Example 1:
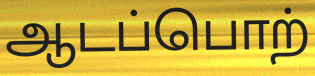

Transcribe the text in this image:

ஆடப்பொற்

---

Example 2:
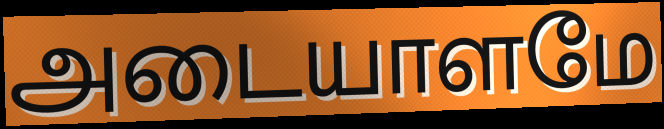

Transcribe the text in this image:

அடையாளமே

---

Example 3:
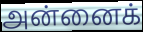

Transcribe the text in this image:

அன்னைக்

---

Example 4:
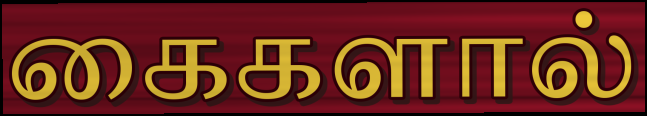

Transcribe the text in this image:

கைகளால்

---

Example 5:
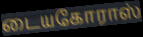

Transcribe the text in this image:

டையகோராஸ்